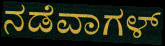
ನಡೆವಾಗಳ್